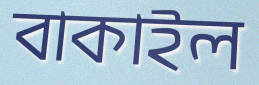
বাকাইল